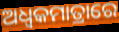
ଅଧ୍ଵକମାତ୍ରାରେ